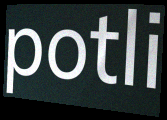
potli